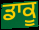
ਡਾਕੂ